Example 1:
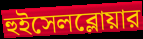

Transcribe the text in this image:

হুইসেলব্লোয়ার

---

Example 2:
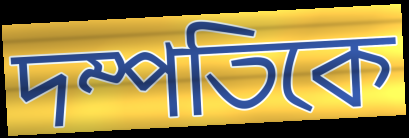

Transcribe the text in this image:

দম্পতিকে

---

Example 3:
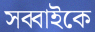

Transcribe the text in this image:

সব্বাইকে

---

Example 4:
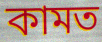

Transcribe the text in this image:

কামত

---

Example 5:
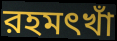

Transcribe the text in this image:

রহমৎখাঁ